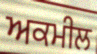
ਅਕਮੀਲ